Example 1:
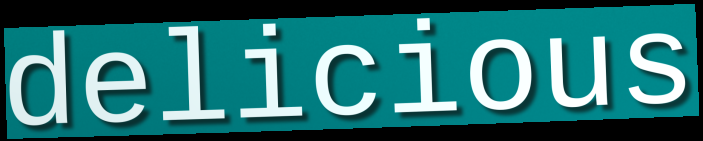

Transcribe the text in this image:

delicious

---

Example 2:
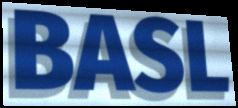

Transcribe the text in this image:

BASL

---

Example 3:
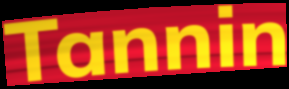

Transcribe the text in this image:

Tannin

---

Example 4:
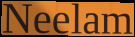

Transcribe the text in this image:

Neelam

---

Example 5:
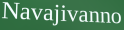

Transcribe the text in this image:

Navajivanno